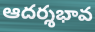
ఆదర్శభావ